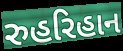
રુહરિહાન